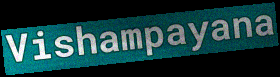
Vishampayana